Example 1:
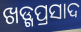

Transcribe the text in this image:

ଖଡ୍ଗପ୍ରସାଦ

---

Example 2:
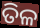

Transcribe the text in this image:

ତିଳ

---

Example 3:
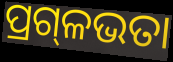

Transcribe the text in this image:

ପ୍ରଗ୍‍ଳଭତା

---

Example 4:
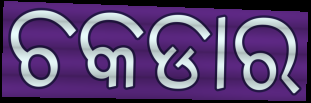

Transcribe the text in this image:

ଚକଡାର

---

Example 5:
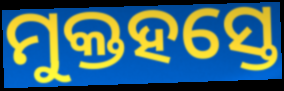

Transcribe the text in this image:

ମୁକ୍ତହସ୍ତେ